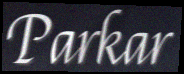
Parkar